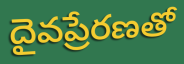
దైవప్రేరణతో